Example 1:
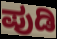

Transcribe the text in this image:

ಪುಡಿ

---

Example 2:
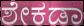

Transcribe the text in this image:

ಶೇಕಡಾ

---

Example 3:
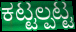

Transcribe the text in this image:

ಕಟ್ಟಲ್ಪಟ್ಟ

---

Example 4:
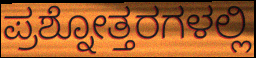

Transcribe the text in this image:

ಪ್ರಶ್ನೋತ್ತರಗಳಲ್ಲಿ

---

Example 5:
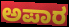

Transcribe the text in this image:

ಅಪಾರ